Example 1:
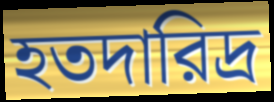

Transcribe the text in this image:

হতদারিদ্র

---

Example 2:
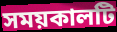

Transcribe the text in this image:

সময়কালটি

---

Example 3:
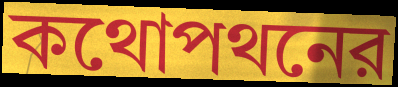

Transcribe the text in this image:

কথোপথনের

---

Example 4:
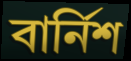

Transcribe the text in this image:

বার্নিশ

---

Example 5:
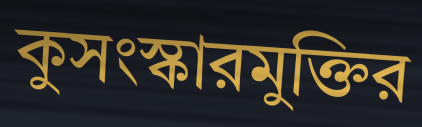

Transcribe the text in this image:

কুসংস্কারমুক্তির